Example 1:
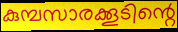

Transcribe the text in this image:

കുമ്പസാരക്കൂടിന്റെ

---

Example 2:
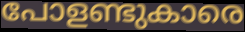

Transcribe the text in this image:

പോളണ്ടുകാരെ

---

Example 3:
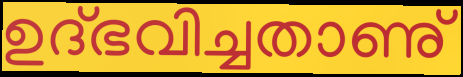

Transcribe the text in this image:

ഉദ്ഭവിച്ചതാണു്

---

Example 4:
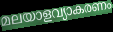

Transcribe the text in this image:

മലയാളവ്യാകരണം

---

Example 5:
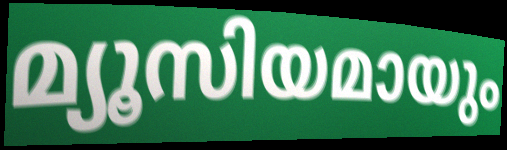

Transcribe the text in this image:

മ്യൂസിയമായും